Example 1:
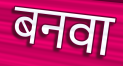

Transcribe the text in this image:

बनवा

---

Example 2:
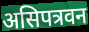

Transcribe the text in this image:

असिपत्रवन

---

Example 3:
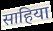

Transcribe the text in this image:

साहिया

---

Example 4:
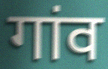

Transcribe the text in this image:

गांव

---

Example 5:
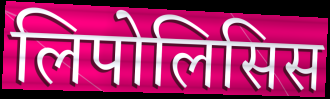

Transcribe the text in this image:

लिपोलिसिस